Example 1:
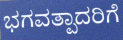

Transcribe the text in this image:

ಭಗವತ್ಪಾದರಿಗೆ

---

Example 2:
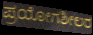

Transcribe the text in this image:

ಪ್ರಯೋಗಶೀಲರ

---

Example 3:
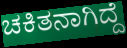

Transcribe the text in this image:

ಚಕಿತನಾಗಿದ್ದೆ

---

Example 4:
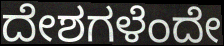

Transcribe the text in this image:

ದೇಶಗಳೆಂದೇ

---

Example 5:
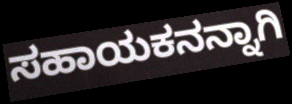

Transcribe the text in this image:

ಸಹಾಯಕನನ್ನಾಗಿ